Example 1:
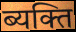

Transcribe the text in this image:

ब्यक्ति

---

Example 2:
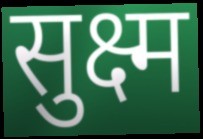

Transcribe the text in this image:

सुक्ष्म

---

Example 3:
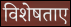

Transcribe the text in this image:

विशेषताए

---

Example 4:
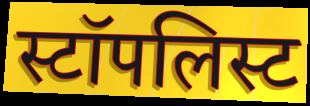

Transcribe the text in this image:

स्टॉपलिस्ट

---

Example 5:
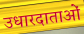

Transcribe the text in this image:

उधारदाताओं